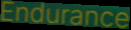
Endurance